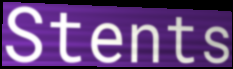
Stents